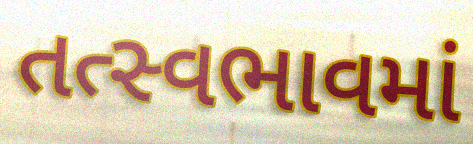
તત્સ્વભાવમાં